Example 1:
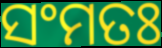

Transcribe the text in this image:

ସଂମତଃ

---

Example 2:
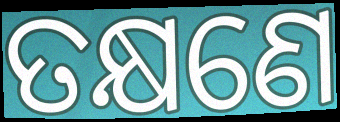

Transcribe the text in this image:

ତକ୍ଷଣେ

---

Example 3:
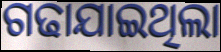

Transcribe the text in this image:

ଗଢାଯାଇଥିଲା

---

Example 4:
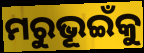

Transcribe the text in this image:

ମରୁଭୂଇଁକୁ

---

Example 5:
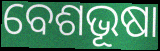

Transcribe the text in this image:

ବେଶଭୂଷା